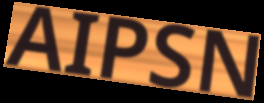
AIPSN